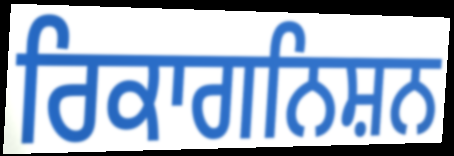
ਰਿਕਾਗਨਿਸ਼ਨ